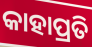
କାହାପ୍ରତି